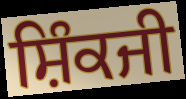
ਸ਼ਿੰਕਜੀ